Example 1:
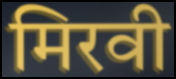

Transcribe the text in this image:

मिरवी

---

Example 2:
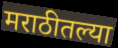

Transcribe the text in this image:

मराठीतल्या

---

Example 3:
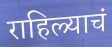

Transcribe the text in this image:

राहिल्याचं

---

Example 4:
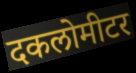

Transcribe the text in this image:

दकलोमीटर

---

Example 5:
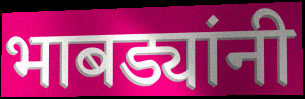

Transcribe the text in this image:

भाबड्यांनी